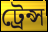
ট্রেন্স